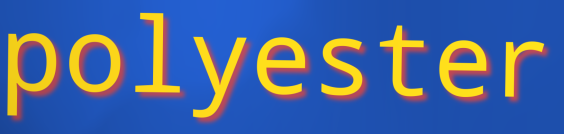
polyester